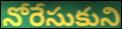
నోరేసుకుని